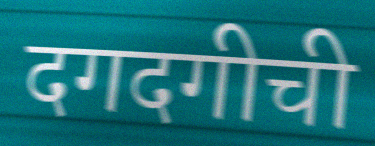
दगदगीची